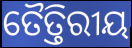
ତୈତ୍ତିରୀୟ